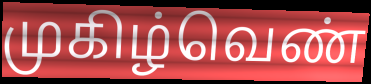
முகிழ்வெண்